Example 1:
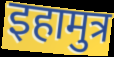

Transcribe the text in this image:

इहामुत्र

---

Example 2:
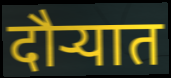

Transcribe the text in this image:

दौर्‍यात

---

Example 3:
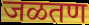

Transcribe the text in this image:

जळतण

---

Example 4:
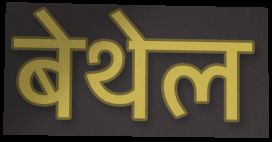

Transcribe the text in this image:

बेथेल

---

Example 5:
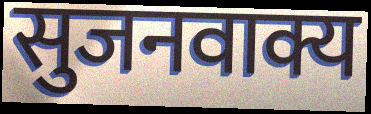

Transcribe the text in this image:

सुजनवाक्य